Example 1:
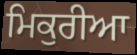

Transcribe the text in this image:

ਮਿਕੁਰੀਆ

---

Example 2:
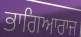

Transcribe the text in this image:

ਭਾਗਿਆਰਾਜ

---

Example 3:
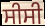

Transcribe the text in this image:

ਸੀਸੀ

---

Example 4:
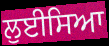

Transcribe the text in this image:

ਲੁਈਸਿਆ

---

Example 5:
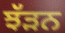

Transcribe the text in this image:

ਝੱੜਨ